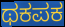
ಥಕಪಕ